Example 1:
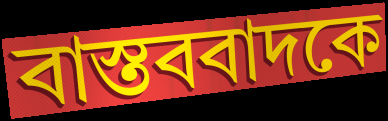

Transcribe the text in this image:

বাস্তববাদকে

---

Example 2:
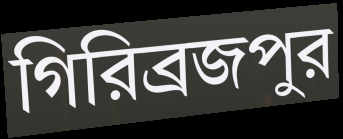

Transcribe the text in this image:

গিরিব্রজপুর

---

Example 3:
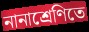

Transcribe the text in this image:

নানাশ্রেণিতে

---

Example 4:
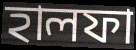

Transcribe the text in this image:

হালফা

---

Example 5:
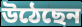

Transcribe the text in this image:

উঠেছেন